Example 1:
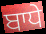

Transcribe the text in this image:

ਬਾਧੇ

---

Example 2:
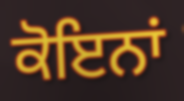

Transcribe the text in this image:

ਕੋਇਨਾਂ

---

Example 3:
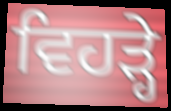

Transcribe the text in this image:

ਵਿਹੜ੍ਹੇ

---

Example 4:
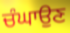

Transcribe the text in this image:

ਚੰਘਾਉਣ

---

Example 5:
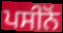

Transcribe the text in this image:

ਪਸੀਨੋਂ